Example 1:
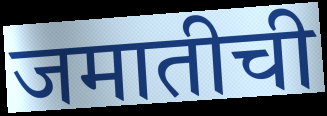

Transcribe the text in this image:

जमातीची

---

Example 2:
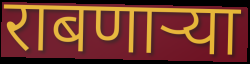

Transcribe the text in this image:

राबणार्‍या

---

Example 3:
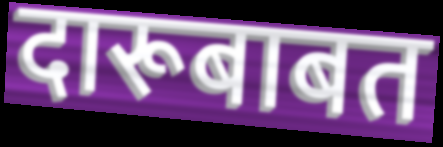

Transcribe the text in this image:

दारूबाबत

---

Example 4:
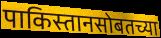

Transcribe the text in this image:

पाकिस्तानसोबतच्या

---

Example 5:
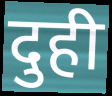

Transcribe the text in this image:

दुही